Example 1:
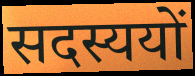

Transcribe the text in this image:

सदस्ययों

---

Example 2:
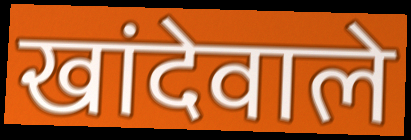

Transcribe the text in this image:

खांदेवाले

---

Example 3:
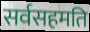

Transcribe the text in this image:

सर्वसहमति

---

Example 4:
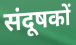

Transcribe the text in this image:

संदूषकों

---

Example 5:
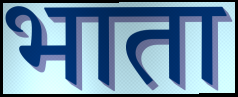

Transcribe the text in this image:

भाता